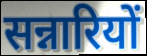
सन्नारियों